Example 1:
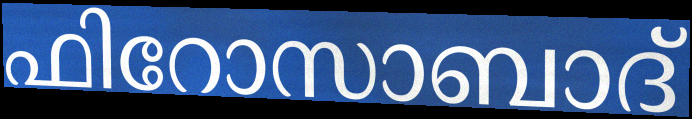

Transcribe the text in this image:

ഫിറോസാബാദ്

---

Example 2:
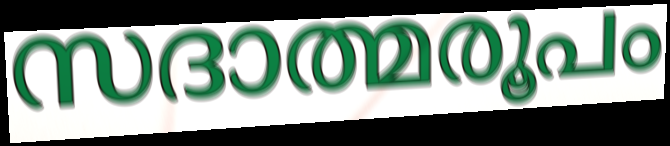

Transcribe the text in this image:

സദാത്മരൂപം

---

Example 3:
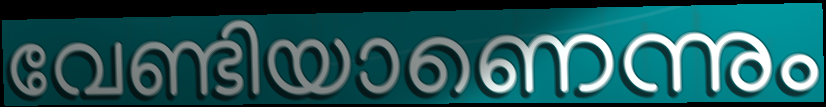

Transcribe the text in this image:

വേണ്ടിയാണെന്നും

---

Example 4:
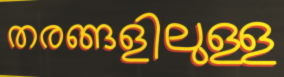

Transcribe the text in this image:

തരങ്ങളിലുള്ള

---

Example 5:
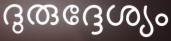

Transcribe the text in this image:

ദുരുദ്ദേശ്യം